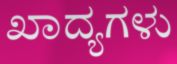
ಖಾದ್ಯಗಳು